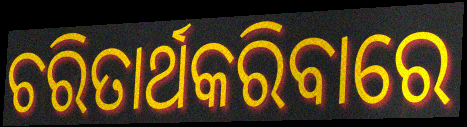
ଚରିତାର୍ଥକରିବାରେ